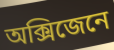
অক্সিজেনে